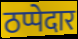
ठप्पेदार